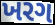
ખરગ